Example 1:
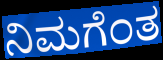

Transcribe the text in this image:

ನಿಮಗೆಂತ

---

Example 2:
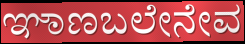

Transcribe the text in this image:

ಞಾಣಬಲೇನೇವ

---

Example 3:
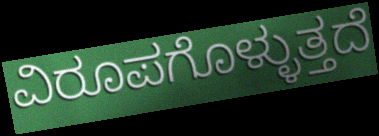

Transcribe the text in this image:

ವಿರೂಪಗೊಳ್ಳುತ್ತದೆ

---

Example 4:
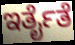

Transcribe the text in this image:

ಇರ್ತೈತೆ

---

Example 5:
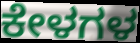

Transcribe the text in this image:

ಕೇಳಗಳ